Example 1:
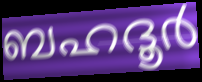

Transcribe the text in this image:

ബഹദൂർ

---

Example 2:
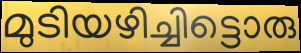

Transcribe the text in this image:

മുടിയഴിച്ചിട്ടൊരു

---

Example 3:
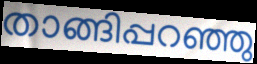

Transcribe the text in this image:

താങ്ങിപ്പറഞ്ഞു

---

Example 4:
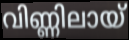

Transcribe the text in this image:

വിണ്ണിലായ്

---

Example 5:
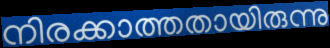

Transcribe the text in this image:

നിരക്കാത്തതായിരുന്നു